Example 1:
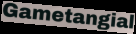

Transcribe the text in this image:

Gametangial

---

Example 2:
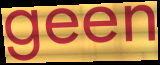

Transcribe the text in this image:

geen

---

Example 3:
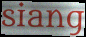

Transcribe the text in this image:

siang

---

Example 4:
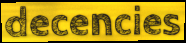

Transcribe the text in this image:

decencies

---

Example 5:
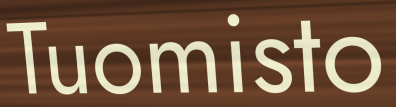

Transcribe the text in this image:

Tuomisto